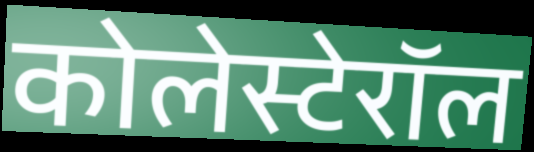
कोलेस्टेरॉल